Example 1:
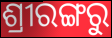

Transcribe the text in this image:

ଶ୍ରୀରଙ୍ଗରୁ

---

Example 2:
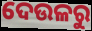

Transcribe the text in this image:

ଦେଉଳରୁ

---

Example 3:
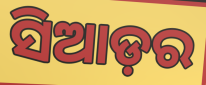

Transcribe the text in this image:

ସିଆଡ଼ର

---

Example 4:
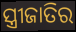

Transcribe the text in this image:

ସ୍ତ୍ରୀଜାତିର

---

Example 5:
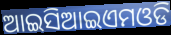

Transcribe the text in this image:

ଆଇସିଆଇଏମଓଡି